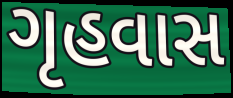
ગૃહવાસ